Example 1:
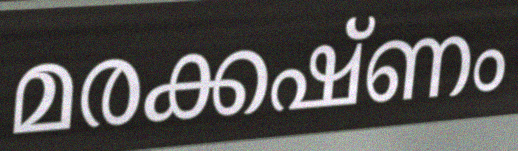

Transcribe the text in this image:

മരക്കഷ്ണം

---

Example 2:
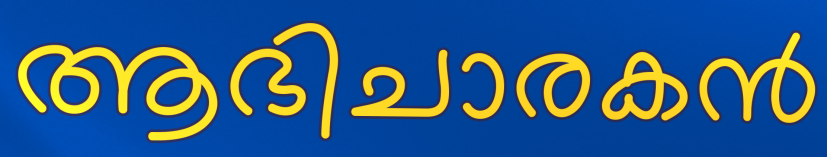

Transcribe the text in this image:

ആഭിചാരകൻ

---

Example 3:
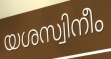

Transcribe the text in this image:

യശസ്വിനീം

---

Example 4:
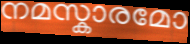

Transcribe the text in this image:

നമസ്കാരമോ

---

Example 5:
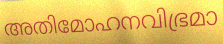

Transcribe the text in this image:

അതിമോഹനവിഭ്രമാ